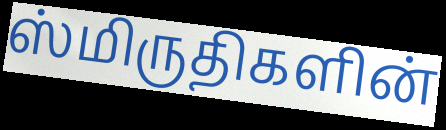
ஸ்மிருதிகளின்